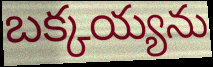
బక్కయ్యను